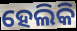
ହେଲିକି